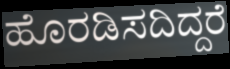
ಹೊರಡಿಸದಿದ್ದರೆ